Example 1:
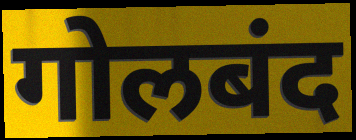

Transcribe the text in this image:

गोलबंद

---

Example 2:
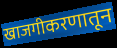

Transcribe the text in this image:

खाजगीकरणातून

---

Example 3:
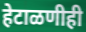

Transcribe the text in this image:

हेटाळणीही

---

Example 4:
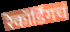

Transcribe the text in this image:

रेकॉर्डिंगचं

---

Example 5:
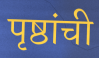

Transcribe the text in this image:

पृष्ठांची